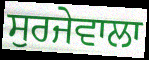
ਸੁਰਜੇਵਾਲਾ